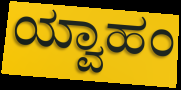
ಯ್ವಾಹಂ